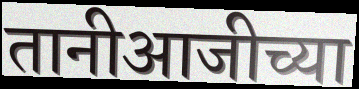
तानीआजीच्या